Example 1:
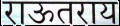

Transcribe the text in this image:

राऊतराय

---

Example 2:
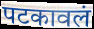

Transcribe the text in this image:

पटकावलं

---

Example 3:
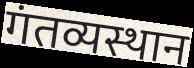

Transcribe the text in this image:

गंतव्यस्थान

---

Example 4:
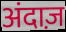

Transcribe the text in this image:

अंदाज़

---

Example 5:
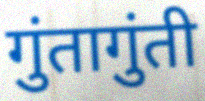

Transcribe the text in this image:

गुंतागुंती